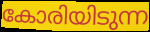
കോരിയിടുന്ന